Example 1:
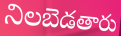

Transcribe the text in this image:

నిలబెడతారు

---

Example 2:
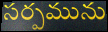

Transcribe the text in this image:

సర్పమును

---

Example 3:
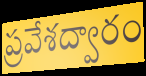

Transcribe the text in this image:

ప్రవేశద్వారం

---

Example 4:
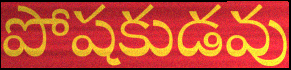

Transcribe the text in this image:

పోషకుడవు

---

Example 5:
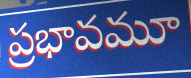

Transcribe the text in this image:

ప్రభావమూ